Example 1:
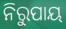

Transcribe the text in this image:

ନିରୁପାୟ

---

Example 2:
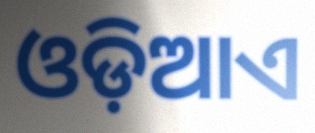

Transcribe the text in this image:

ଓଡ଼ିଆଏ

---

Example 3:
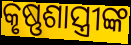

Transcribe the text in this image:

କୃଷ୍ଣଶାସ୍ତ୍ରୀଙ୍କ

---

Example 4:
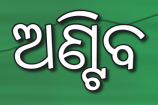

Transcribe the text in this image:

ଅଣ୍ଟିବ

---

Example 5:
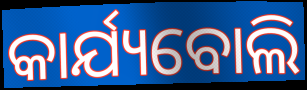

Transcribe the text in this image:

କାର୍ଯ୍ୟବୋଲି